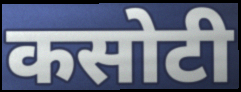
कसोटी